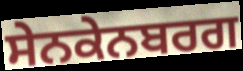
ਸੇਨਕੇਨਬਰਗ